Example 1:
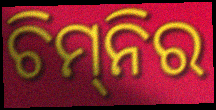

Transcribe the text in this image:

ଚିମ୍‌ନିର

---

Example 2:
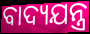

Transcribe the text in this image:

ବାଦ୍ୟଯନ୍ତ୍ର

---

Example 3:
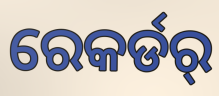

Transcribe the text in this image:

ରେକର୍ଡର୍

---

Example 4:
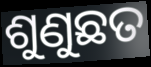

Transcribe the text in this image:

ଶୁଣୁଛତ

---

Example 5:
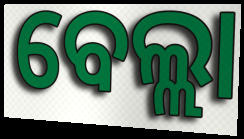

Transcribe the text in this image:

ବେଲ୍ଲା